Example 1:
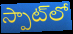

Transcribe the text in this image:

స్పాట్‌లో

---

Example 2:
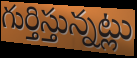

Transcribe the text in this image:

గుర్తిస్తున్నట్లు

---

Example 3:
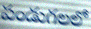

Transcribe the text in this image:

పండుగలలో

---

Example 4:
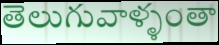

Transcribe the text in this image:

తెలుగువాళ్ళంతా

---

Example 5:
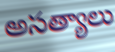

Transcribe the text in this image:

అసత్యాలు